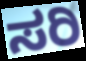
ಸರಿ